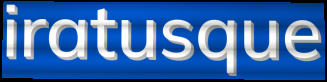
iratusque